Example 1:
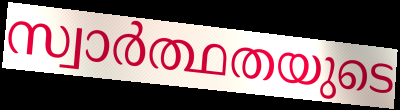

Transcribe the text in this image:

സ്വാർത്ഥതയുടെ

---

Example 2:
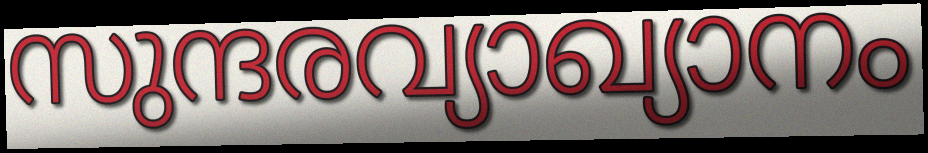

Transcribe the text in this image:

സുന്ദരവ്യാഖ്യാനം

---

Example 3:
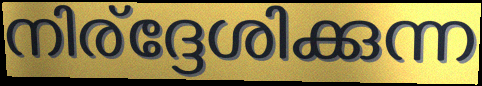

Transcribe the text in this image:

നിര്ദ്ദേശിക്കുന്ന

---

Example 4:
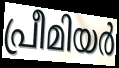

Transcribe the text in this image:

പ്രീമിയർ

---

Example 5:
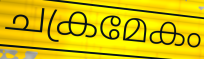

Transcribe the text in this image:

ചക്രമേകം